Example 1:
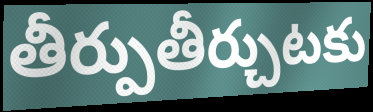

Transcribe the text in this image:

తీర్పుతీర్చుటకు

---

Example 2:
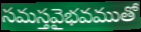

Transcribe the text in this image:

సమస్తవైభవముతో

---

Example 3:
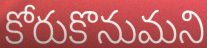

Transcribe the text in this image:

కోరుకొనుమని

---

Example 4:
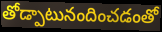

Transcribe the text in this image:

తోడ్పాటునందించడంతో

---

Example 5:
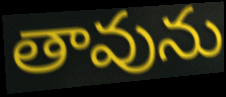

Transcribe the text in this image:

తావును